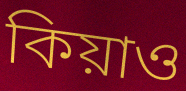
কিয়াও